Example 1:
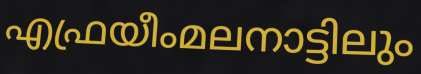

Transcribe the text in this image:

എഫ്രയീംമലനാട്ടിലും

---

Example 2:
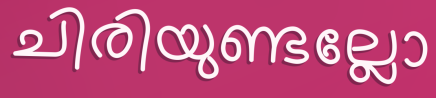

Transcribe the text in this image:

ചിരിയുണ്ടല്ലോ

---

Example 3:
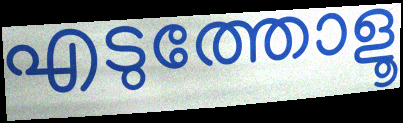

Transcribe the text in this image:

എടുത്തോളൂ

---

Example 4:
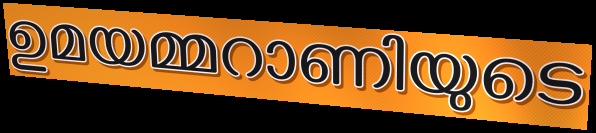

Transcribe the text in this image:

ഉമയമ്മറാണിയുടെ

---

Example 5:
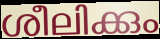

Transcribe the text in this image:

ശീലിക്കും